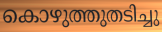
കൊഴുത്തുതടിച്ചു